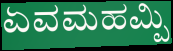
ಏವಮಹಮ್ಪಿ